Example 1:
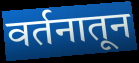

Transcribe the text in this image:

वर्तनातून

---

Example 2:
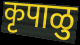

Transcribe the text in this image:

कृपाळु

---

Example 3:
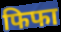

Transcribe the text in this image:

फिफा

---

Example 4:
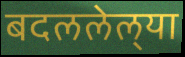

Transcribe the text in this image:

बदललेल्या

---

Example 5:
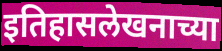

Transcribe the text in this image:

इतिहासलेखनाच्या